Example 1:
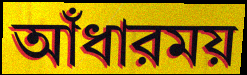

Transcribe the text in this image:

আঁধারময়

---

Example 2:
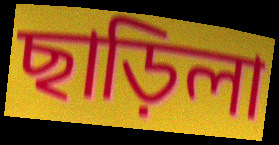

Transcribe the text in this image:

ছাড়িলা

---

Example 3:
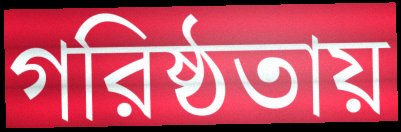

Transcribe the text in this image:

গরিষ্ঠতায়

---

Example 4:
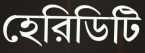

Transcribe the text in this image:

হেরিডিটি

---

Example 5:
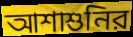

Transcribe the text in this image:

আশাশুনির